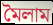
মৈলাম